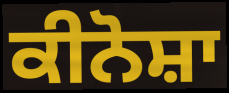
ਕੀਨੋਸ਼ਾ